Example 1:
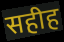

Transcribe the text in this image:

सह़ीह़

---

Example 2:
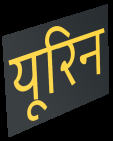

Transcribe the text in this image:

यूरिन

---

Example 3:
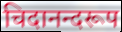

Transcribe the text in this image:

चिदानन्दरूप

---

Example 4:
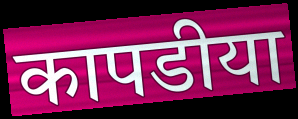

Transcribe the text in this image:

कापडीया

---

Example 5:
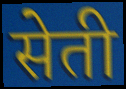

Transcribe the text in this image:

सेती